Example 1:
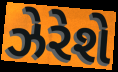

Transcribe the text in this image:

ઝેરેશે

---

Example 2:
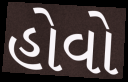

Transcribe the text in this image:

હોવો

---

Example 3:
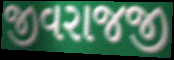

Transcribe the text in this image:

જીવરાજજી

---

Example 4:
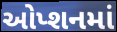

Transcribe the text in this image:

ઓપ્શનમાં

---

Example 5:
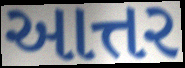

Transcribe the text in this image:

આત્તર